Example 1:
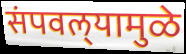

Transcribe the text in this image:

संपवल्यामुळे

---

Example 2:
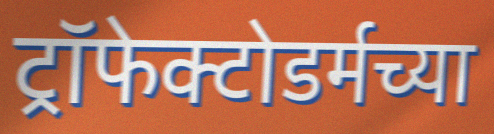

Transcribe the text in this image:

ट्रॉफेक्टोडर्मच्या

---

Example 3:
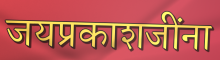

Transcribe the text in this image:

जयप्रकाशजींना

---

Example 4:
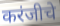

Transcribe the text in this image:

करंजीचे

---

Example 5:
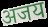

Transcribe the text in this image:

अजय